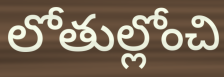
లోతుల్లోంచి